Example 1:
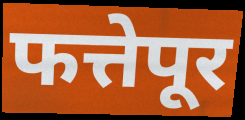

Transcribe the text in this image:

फत्तेपूर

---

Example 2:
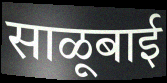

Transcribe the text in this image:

साळूबाई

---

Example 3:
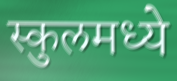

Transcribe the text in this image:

स्कुलमध्ये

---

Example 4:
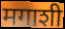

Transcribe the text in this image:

मगाशी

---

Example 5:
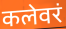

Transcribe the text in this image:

कलेवरं